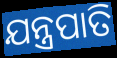
ଯନ୍ତ୍ରପାତି